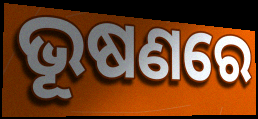
ଭୂଷଣରେ